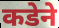
कडेने